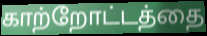
காற்றோட்டத்தை